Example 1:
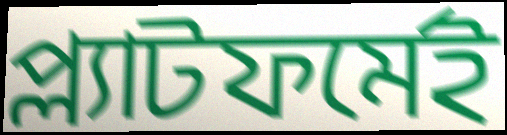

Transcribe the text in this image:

প্ল্যাটফর্মেই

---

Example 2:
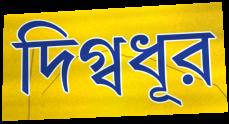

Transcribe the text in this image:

দিগ্বধূর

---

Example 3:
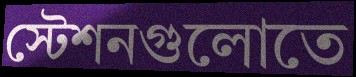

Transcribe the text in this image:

স্টেশনগুলোতে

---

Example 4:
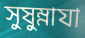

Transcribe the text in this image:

সুষুম্নাযা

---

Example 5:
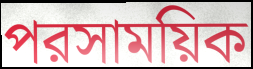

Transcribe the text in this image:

পরসাময়িক